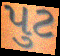
પુટ